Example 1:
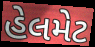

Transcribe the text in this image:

હેલમેટ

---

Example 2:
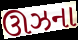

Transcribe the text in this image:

ઊઝના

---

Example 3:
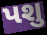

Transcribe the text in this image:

પશુ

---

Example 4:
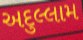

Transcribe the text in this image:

અદુલ્લામ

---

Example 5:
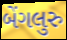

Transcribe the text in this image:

બેંગલુરુ